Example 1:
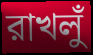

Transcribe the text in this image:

রাখলুঁ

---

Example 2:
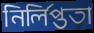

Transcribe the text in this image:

নির্লিপ্ততা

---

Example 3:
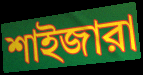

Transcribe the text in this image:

শাইজারা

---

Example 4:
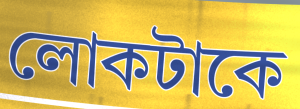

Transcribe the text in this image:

লোকটাকে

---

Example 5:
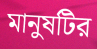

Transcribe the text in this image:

মানুষটির